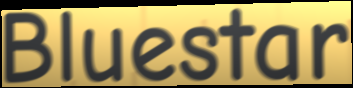
Bluestar